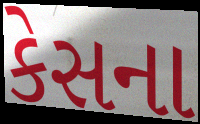
કેસના